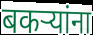
बकर्‍यांना